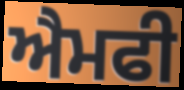
ਐਮਫੀ